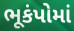
ભૂકંપોમાં